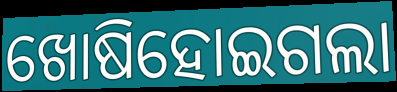
ଖୋଷିହୋଇଗଲା